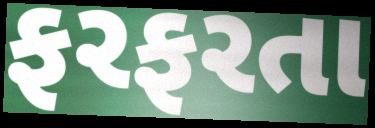
ફરફરતા